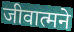
जीवात्मने